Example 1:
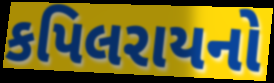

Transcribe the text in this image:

કપિલરાયનો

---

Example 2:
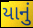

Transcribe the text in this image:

યાનું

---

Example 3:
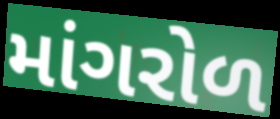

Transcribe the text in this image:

માંગરોળ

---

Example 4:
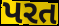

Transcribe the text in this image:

પરત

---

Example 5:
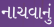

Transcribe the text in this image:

નાચવાનું